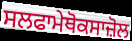
ਸਲਫਾਮੇਥੋਕਸਾਜ਼ੋਲ